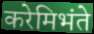
करेमिभंते